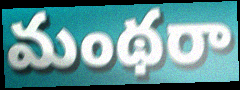
మంథరా